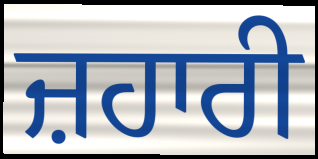
ਜ਼ਹਾਰੀ